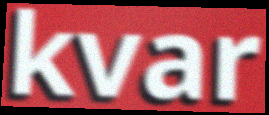
kvar